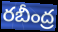
రబీంద్ర